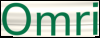
Omri